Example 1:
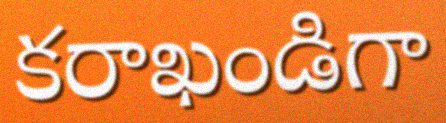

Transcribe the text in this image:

కరాఖండిగా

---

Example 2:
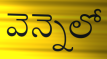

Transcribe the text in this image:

వెన్నెలో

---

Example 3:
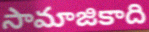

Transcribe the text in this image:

సామాజికాది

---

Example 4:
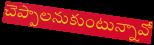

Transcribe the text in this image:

చెప్పాలనుకుంటున్నావో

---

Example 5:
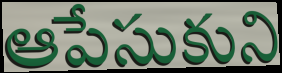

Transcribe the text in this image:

ఆపేసుకుని